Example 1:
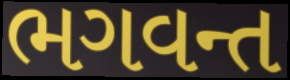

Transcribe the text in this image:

ભગવન્ત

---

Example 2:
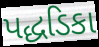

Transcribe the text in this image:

પદ્ધડિકા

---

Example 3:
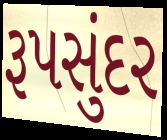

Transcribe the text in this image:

રૂપસુંદર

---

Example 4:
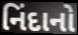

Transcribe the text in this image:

નિંદાનો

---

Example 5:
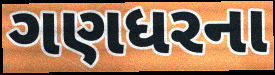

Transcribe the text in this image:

ગણધરના